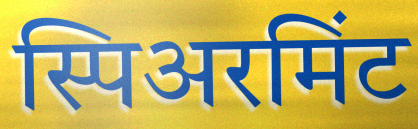
स्पिअरमिंट